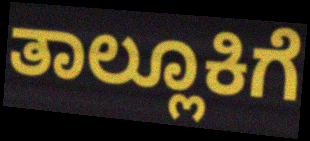
ತಾಲ್ಲೂಕಿಗೆ